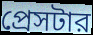
প্রেসটার